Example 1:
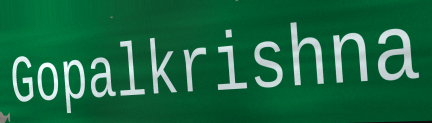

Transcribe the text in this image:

Gopalkrishna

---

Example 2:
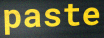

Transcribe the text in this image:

paste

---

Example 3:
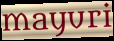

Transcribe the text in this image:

mayuri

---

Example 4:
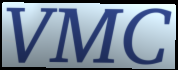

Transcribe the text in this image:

VMC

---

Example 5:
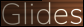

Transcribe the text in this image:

Glides